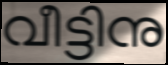
വീട്ടിനു